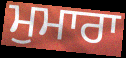
ਮੁਮਾਰਾ